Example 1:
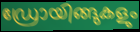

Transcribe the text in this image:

ഡ്രോയിങ്ങുകളും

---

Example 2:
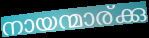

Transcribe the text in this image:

നായന്മാര്ക്കു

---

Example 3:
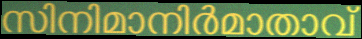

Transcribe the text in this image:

സിനിമാനിർമാതാവ്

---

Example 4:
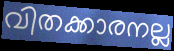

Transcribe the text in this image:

വിതക്കാരനല്ല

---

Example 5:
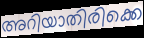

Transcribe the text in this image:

അറിയാതിരിക്കെ